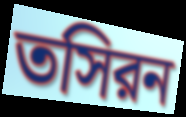
তসিরন